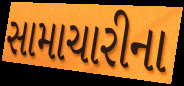
સામાચારીના